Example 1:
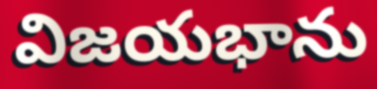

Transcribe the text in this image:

విజయభాను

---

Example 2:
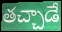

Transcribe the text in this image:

తచ్చాడే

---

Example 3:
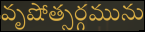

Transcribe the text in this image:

వృషోత్సర్గమును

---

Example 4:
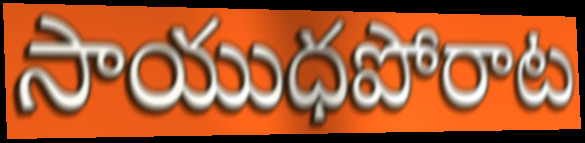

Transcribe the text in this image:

సాయుధపోరాట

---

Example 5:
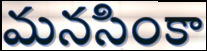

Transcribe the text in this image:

మనసింకా